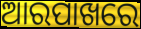
ଆରପାଖରେ